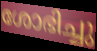
ശോഭിച്ചു